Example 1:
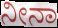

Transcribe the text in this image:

ನೀನಾ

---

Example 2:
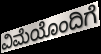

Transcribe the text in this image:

ವಿಮೆಯೊಂದಿಗೆ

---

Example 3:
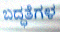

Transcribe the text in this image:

ಬದ್ಧತೆಗಳ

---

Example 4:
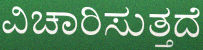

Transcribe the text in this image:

ವಿಚಾರಿಸುತ್ತದೆ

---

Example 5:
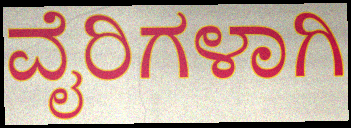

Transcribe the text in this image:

ವೈರಿಗಳಾಗಿ